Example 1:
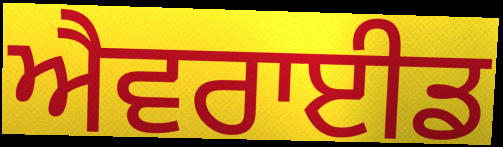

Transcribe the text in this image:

ਐਵਰਾਈਡ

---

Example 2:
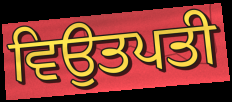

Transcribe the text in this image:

ਵਿਉਤਪਤੀ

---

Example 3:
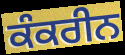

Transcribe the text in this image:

ਕੰਕਰੀਨ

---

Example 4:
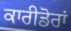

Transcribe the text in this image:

ਕਾਰੀਡੋਰਾਂ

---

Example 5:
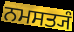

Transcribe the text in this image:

ਨਮਸਤ੍ਯੰ